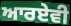
ਆਰਏਵੀ